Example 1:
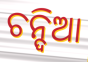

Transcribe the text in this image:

ଚନ୍ଦିଆ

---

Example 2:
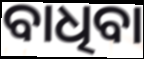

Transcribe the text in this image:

ବାଧିବା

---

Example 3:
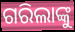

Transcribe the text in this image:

ଗରିଲାଙ୍କୁ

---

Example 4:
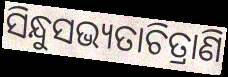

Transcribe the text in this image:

ସିନ୍ଧୁସଭ୍ୟତାଚିତ୍ରାଣି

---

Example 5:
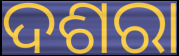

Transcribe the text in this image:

ଦଶରା